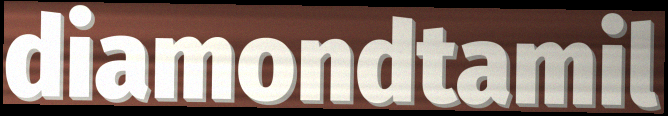
diamondtamil